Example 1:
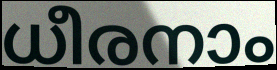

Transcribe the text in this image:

ധീരനാം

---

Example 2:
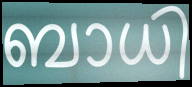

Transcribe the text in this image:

ബാധി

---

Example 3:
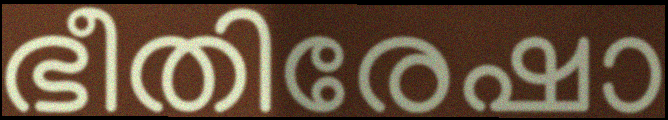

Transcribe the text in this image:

ഭീതിരേഷാ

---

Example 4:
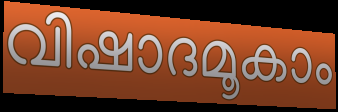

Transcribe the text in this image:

വിഷാദമൂകാം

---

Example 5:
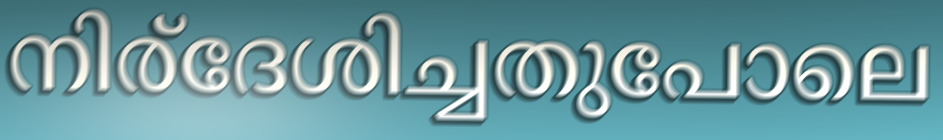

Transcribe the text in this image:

നിര്ദേശിച്ചതുപോലെ